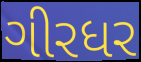
ગીરધર